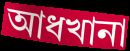
আধখানা